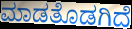
ಮಾಡತೊಡಗಿದೆ